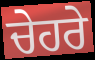
ਚੇਹਰੇ